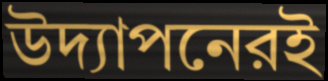
উদ্যাপনেরই